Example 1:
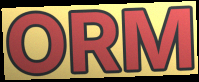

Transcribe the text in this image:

ORM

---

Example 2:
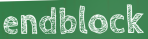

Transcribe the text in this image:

endblock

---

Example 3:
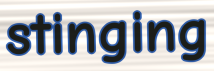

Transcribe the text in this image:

stinging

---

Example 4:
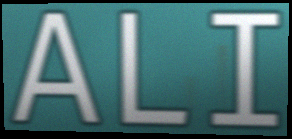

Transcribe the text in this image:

ALI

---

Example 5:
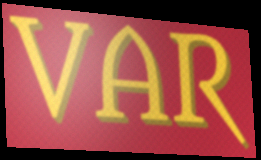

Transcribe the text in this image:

VAR